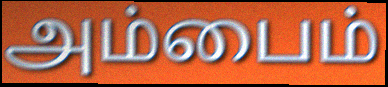
அம்பைம்